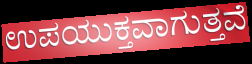
ಉಪಯುಕ್ತವಾಗುತ್ತವೆ